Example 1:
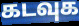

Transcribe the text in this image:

கடவுக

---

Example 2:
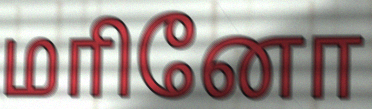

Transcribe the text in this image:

மரினோ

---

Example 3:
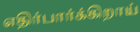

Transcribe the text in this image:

எதிர்பார்க்கிறாய்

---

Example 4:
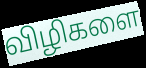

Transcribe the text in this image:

விழிகளை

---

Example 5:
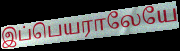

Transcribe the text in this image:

இப்பெயராலேயே